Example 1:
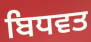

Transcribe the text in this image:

ਬਿਧਵਤ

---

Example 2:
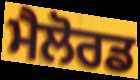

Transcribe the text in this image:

ਮੈਲੋਰਡ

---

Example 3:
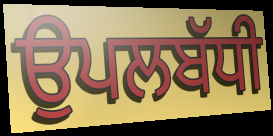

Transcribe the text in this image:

ਉਪਲਬੱਧੀ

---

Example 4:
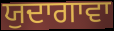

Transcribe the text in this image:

ਯੁਦਾਗਾਵਾ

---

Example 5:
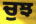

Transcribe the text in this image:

ਚੁਝ